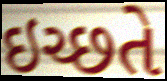
ઇચ્છતે